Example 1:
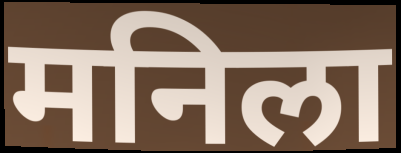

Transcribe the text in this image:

मनिला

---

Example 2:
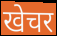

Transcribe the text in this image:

खेचर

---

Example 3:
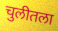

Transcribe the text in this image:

चुलीतला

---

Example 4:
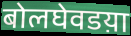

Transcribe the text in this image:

बोलघेवडय़ा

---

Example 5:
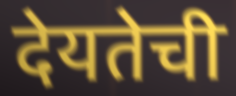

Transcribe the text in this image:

देयतेची